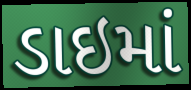
ડાઇમાં